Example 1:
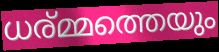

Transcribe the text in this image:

ധര്മ്മത്തെയും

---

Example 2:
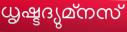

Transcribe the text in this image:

ധൃഷ്ടദ്യുമ്നസ്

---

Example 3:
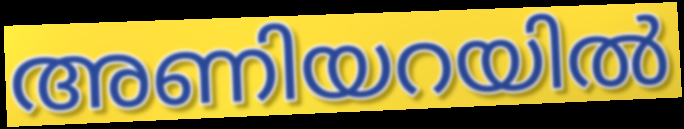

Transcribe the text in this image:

അണിയറയിൽ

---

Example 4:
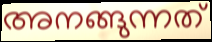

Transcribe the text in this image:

അനങ്ങുന്നത്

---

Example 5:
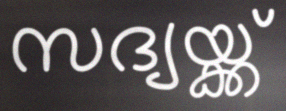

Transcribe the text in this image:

സദ്യയ്ക്ക്